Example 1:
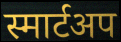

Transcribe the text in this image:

स्मार्टअप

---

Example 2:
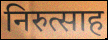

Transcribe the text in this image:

निरुत्साह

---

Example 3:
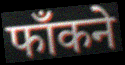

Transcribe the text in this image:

फाँकने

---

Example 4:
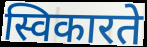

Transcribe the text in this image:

स्विकारते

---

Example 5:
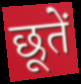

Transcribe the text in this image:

छूतें